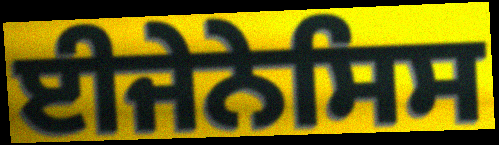
ਈਜੇਨੇਸਿਸ